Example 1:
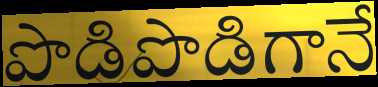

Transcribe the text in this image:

పొడిపొడిగానే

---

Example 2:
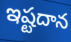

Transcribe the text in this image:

ఇష్టదాన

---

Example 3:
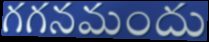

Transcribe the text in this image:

గగనమందు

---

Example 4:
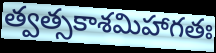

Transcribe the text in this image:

త్వత్సకాశమిహాగతః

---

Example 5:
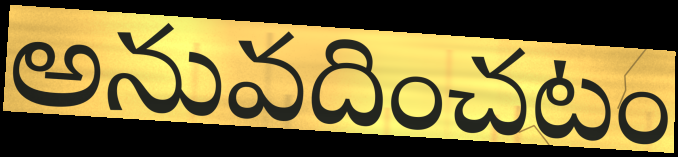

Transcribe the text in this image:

అనువదించటం